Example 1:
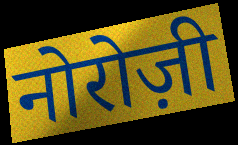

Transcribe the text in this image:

नोरोज़ी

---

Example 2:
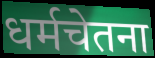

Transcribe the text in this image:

धर्मचेतना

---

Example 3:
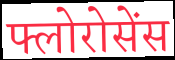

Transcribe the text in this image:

फ्लोरोसेंस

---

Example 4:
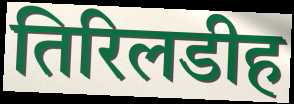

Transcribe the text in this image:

तिरिलडीह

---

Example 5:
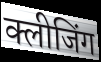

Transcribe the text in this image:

क्‍लीजिंग